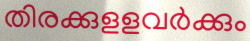
തിരക്കുളളവർക്കും